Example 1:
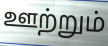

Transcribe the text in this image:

ஊற்றும்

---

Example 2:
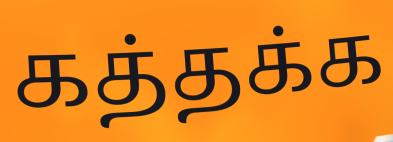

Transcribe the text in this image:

கத்தக்க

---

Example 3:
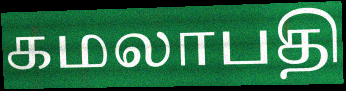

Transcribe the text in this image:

கமலாபதி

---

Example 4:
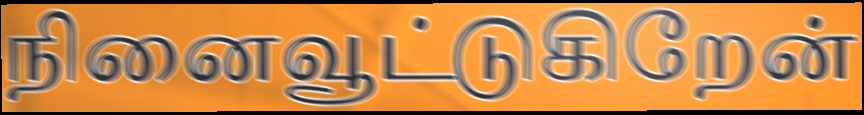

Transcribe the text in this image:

நினைவூட்டுகிறேன்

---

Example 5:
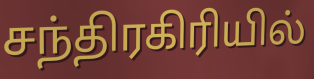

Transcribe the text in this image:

சந்திரகிரியில்